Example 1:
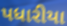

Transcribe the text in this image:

પધારીયા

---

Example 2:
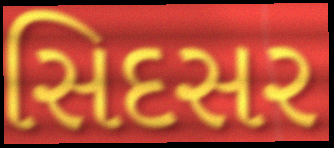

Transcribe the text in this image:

સિદસર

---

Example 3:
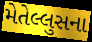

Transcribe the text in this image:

મેતેલ્લુસના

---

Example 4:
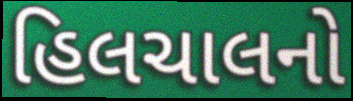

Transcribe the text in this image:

હિલચાલનો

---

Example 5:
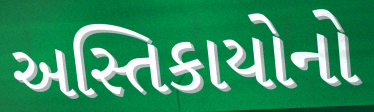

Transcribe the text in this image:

અસ્તિકાયોનો